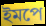
ইমপে